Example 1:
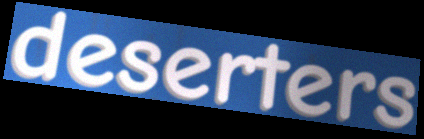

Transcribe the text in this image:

deserters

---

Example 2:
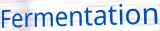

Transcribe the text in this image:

Fermentation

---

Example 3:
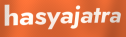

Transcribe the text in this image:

hasyajatra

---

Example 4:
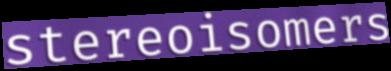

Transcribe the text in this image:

stereoisomers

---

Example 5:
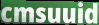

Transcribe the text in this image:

cmsuuid